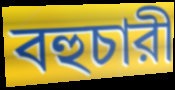
বহুচারী